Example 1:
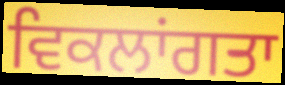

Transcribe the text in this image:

ਵਿਕਲਾਂਗਤਾ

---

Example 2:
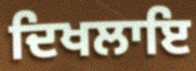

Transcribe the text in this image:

ਦਿਖਲਾਇ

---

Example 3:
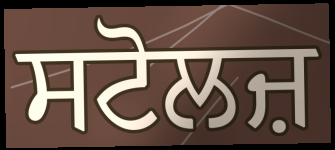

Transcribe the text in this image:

ਸਟੋਲਜ਼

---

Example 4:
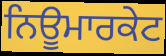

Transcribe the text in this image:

ਨਿਊਮਾਰਕੇਟ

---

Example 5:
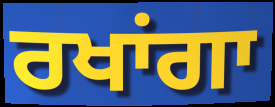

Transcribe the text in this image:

ਰਖਾਂਗਾ